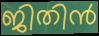
ജിതിൻ